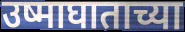
उष्माघाताच्या